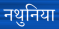
नथुनिया